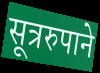
सूत्ररुपाने